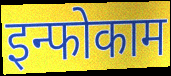
इन्फोकाम